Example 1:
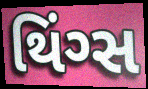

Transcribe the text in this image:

થિંગ્સ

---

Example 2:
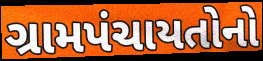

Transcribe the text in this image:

ગ્રામપંચાયતોનો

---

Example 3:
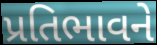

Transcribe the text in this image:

પ્રતિભાવને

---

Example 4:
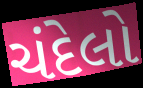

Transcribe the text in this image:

ચંદેલો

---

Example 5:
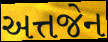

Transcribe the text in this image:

અત્તજેન